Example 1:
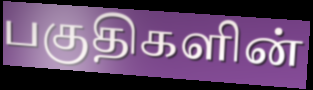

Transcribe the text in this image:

பகுதிகளின்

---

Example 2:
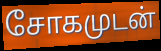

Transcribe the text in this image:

சோகமுடன்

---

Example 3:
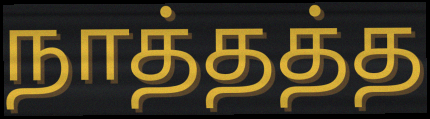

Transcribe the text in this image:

நாத்தத்த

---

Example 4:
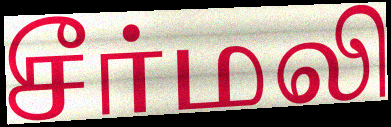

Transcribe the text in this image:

சீர்மலி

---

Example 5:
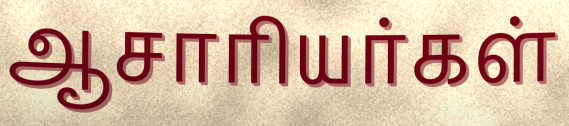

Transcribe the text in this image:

ஆசாரியர்கள்